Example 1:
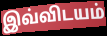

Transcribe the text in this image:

இவ்விடயம்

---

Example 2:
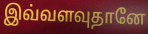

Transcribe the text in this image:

இவ்வளவுதானே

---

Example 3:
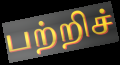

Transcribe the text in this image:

பற்றிச்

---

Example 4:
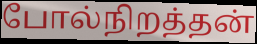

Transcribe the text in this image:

போல்நிறத்தன்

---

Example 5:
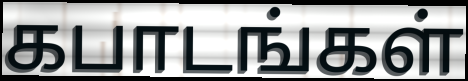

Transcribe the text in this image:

கபாடங்கள்